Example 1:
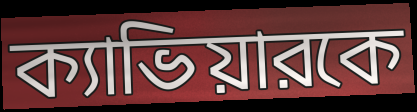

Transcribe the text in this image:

ক্যাভিয়ারকে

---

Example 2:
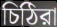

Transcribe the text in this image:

চিঠিরা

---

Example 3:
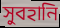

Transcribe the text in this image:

সুবহানি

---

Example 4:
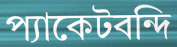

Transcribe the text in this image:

প্যাকেটবন্দি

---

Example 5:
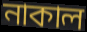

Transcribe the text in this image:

নাকাল